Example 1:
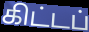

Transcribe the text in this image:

கிட்டப்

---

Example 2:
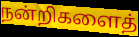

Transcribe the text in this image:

நன்றிகளைத்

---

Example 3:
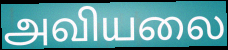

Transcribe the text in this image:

அவியலை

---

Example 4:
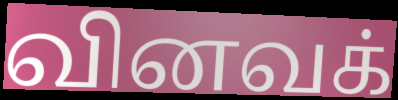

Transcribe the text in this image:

வினவக்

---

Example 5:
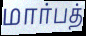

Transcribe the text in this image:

மார்பத்